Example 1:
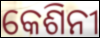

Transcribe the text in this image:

କେଶିନୀ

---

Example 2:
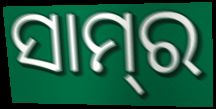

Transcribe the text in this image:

ସାମ୍‌ର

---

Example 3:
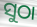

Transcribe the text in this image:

ସୁଠା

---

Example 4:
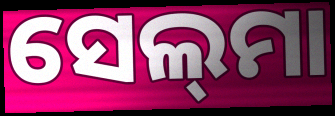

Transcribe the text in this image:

ସେଲ୍‌ମା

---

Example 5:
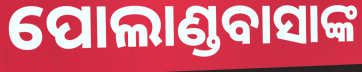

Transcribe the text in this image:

ପୋଲାଣ୍ଡବାସାଙ୍କ